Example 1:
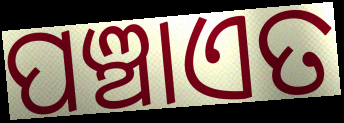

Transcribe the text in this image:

ପଞ୍ଚାଏତ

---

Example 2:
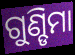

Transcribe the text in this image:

ଗୁଣ୍ଡିମା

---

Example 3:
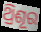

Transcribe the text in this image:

ଥ୍ରିଶୂର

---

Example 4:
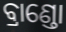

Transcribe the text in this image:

ବ୍ରାଣ୍ଡୋ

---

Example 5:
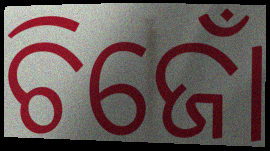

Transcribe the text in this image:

ଚିଜୋଁ